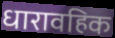
धारावहिक